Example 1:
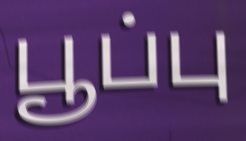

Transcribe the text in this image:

பூப்பு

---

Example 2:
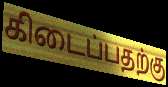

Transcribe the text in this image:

கிடைப்பதற்கு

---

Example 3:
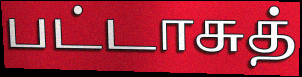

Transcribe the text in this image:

பட்டாசுத்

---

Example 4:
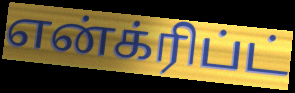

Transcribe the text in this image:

என்க்ரிப்ட்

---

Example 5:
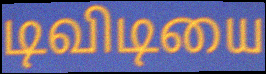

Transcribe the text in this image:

டிவிடியை